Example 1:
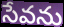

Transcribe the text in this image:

సేవను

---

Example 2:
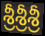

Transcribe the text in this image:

శ్రీశ్రీశ్రీ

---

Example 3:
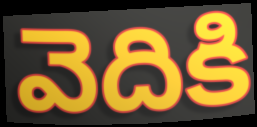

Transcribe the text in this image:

వెదికి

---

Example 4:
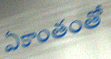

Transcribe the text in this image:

ఏకాంతంతో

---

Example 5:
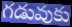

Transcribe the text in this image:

గడువుకు